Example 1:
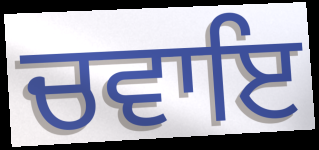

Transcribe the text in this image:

ਚਵਾਇ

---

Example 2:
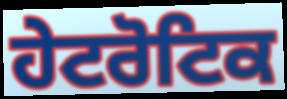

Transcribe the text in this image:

ਹੇਟਰੋਟਿਕ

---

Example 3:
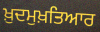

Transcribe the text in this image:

ਖ਼ੁਦਮੁਖ਼ਤਿਆਰ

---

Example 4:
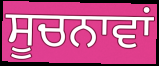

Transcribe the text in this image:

ਸੂਚਨਾਵਾਂ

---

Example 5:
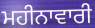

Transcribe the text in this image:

ਮਹੀਨਾਵਾਰੀ